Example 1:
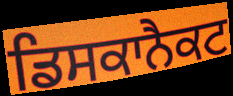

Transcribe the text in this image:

ਡਿਸਕਾਨੈਕਟ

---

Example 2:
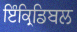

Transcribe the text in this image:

ਇੰਕ੍ਰਿਡਿਬਲ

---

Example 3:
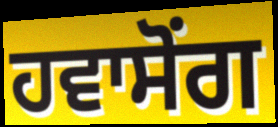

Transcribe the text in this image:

ਹਵਾਸੋਂਗ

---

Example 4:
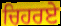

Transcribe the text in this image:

ਚਿਹਰਏ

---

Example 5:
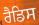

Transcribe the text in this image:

ਰੈਡਿਸ